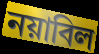
নয়াবিল